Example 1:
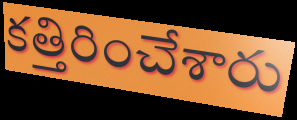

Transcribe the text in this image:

కత్తిరించేశారు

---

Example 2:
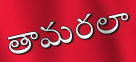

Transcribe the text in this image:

తామరలా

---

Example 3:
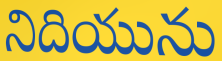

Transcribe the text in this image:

నిదియును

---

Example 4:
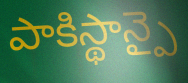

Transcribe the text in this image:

పాకిస్థాన్పై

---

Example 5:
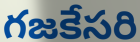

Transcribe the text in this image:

గజకేసరి